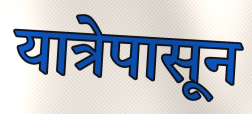
यात्रेपासून